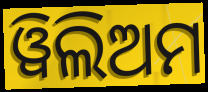
ୱିଲିଅମ